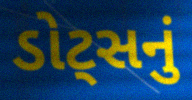
ડોટ્સનું